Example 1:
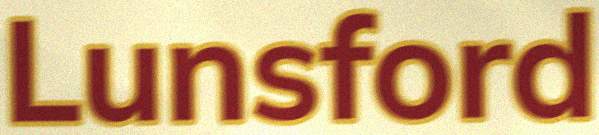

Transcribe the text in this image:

Lunsford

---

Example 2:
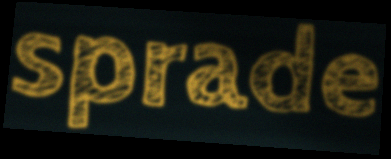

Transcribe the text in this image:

sprade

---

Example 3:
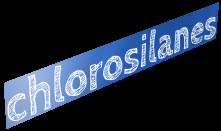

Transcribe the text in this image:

chlorosilanes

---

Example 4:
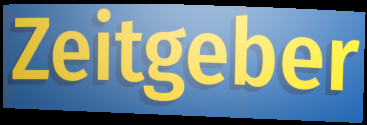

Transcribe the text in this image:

Zeitgeber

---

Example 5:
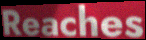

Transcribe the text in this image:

Reaches